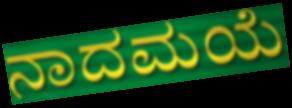
ನಾದಮಯೆ